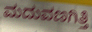
ಮದುವಣಗಿತ್ತಿ